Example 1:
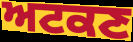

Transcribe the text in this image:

ਅਟਕਣ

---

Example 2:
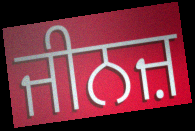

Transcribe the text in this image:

ਜੀਨਜ਼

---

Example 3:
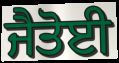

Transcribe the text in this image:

ਜੈਤੋਈ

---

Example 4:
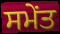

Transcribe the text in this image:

ਸਮੇਂਤ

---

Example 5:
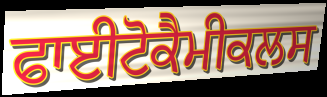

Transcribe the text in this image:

ਫਾਈਟੋਕੈਮੀਕਲਸ